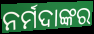
ନର୍ମଦାଙ୍କର